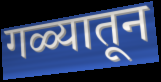
गळ्यातून